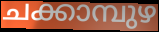
ചക്കാമ്പുഴ